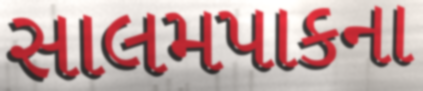
સાલમપાકના